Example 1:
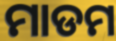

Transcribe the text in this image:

ମାଡମ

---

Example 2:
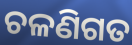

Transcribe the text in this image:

ଚଳଣିଗତ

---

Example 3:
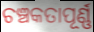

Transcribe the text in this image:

ଚଞ୍ଚକତାପୂର୍ଣ୍ଣ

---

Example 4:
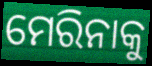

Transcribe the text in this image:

ମେରିନାକୁ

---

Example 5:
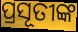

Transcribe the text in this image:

ପ୍ରସୂତୀଙ୍କ